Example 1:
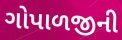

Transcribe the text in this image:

ગોપાળજીની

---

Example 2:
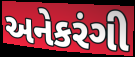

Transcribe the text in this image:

અનેકરંગી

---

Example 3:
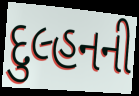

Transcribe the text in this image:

દુલ્હનની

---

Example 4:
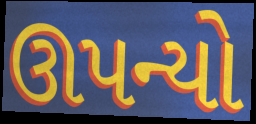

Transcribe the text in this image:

ઊપન્યો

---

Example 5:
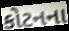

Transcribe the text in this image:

કોટનના